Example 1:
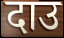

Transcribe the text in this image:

दाउ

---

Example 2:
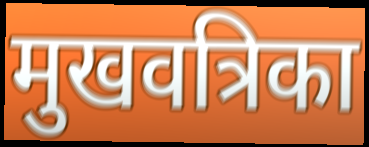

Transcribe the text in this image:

मुखवत्रिका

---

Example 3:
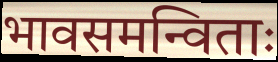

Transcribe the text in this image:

भावसमन्विताः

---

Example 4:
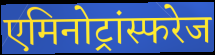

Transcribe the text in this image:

एमिनोट्रांस्फरेज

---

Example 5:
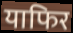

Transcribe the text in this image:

याफिर